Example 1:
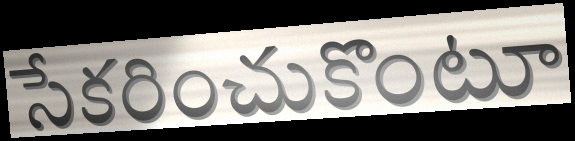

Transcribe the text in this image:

సేకరించుకొంటూ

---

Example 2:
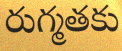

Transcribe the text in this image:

రుగ్మతకు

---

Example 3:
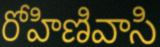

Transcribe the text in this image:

రోహిణివాసి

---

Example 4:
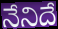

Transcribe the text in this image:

నేనిదే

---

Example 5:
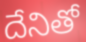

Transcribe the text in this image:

దేనితో